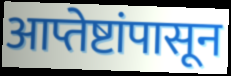
आप्तेष्टांपासून